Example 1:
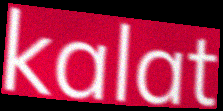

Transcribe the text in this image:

kalat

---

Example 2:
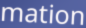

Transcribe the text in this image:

mation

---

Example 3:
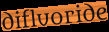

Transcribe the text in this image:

difluoride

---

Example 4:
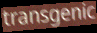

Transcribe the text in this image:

transgenic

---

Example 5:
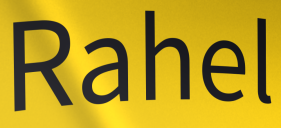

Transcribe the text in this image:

Rahel